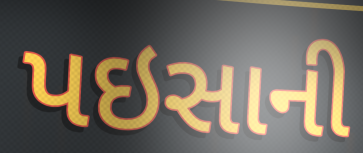
પઇસાની